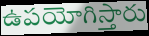
ఉపయోగిస్తారు